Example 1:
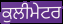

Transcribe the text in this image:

ਕੁਲੀਮੇਟਰ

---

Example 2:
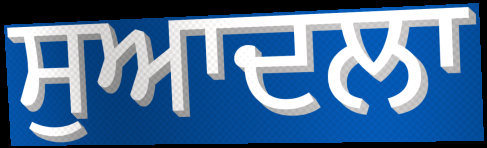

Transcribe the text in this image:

ਸੁਆਦਲਾ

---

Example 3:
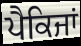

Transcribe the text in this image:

ਪੈਕਿਜਾਂ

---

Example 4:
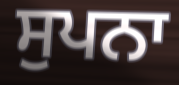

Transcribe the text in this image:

ਸੁਪਨਾ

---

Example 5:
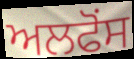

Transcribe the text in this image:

ਅਲਫੋਂਸ